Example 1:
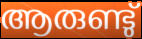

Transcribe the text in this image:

ആരുണ്ടു്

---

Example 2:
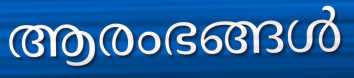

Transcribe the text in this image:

ആരംഭങ്ങൾ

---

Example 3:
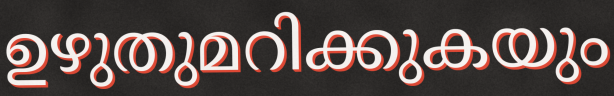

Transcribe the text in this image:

ഉഴുതുമറിക്കുകയും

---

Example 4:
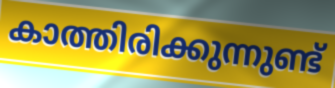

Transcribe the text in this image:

കാത്തിരിക്കുന്നുണ്ട്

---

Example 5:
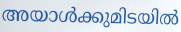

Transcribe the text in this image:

അയാൾക്കുമിടയിൽ